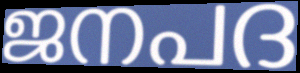
ജനപദ